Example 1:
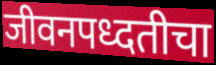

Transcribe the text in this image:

जीवनपध्दतीचा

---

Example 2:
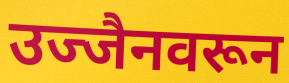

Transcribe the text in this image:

उज्जैनवरून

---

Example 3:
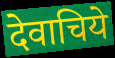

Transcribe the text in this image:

देवाचिये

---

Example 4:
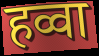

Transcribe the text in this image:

हव्वा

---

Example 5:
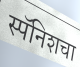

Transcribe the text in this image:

स्पॅनिशचा